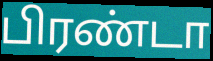
பிரண்டா